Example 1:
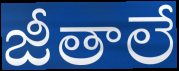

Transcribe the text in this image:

జీతాలే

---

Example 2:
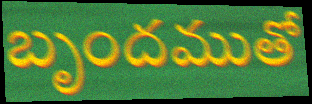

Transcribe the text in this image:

బృందముతో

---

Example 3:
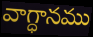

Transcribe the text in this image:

వాగ్ధానము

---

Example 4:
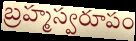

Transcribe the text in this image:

బ్రహ్మస్వరూపం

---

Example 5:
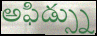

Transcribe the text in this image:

అఫిడ్స్ను